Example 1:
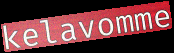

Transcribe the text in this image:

kelavomme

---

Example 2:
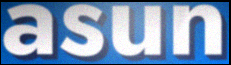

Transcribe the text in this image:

asun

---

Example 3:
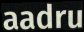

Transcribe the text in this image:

aadru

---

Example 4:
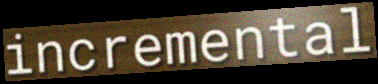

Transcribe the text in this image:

incremental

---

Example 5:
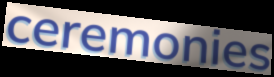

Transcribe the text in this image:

ceremonies